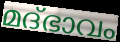
മദ്ഭാവം